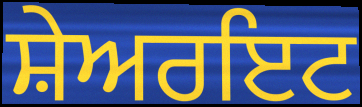
ਸ਼ੇਅਰਇਟ